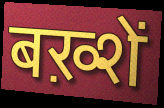
बख़्शें